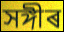
সঙ্গীৰ